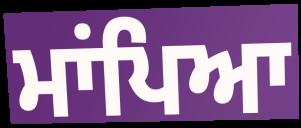
ਮਾਂਪਿਆ